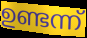
ഉണ്ടന്ന്